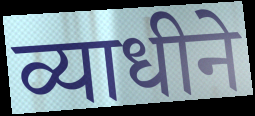
व्याधीने